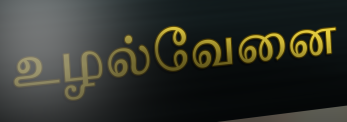
உழல்வேனை